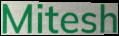
Mitesh